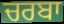
ਚਰਬਾ